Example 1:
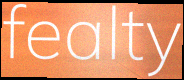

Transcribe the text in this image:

fealty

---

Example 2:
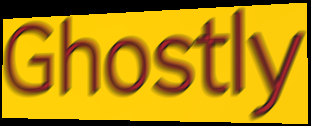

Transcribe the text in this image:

Ghostly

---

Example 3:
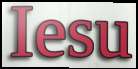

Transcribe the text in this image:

Iesu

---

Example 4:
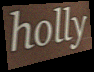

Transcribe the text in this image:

holly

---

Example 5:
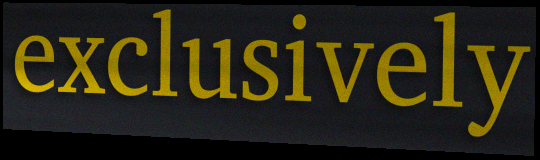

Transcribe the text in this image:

exclusively